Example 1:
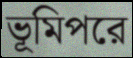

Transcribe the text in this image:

ভূমিপরে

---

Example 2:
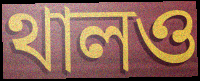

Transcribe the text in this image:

থালও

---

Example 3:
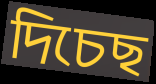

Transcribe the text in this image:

দিচেছ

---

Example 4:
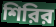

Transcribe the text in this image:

শিরির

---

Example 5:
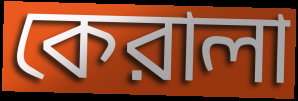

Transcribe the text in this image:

কেরালা